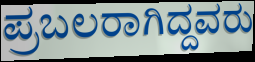
ಪ್ರಬಲರಾಗಿದ್ದವರು